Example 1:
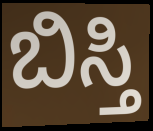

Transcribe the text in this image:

ಬಿಸ್ತಿ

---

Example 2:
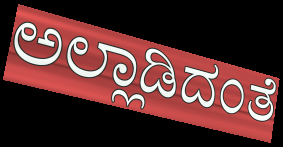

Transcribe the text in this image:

ಅಲ್ಲಾಡಿದಂತೆ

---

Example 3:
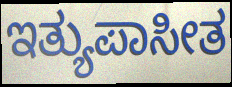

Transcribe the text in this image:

ಇತ್ಯುಪಾಸೀತ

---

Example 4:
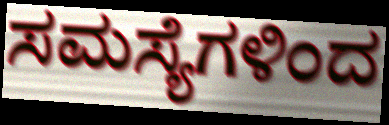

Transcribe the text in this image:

ಸಮಸ್ಯೆಗಳಿಂದ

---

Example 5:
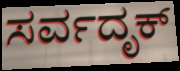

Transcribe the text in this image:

ಸರ್ವದೃಕ್